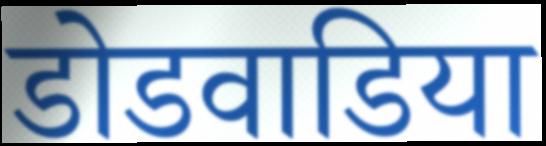
डोडवाडिया